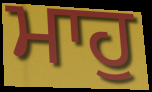
ਮਾਹੁ